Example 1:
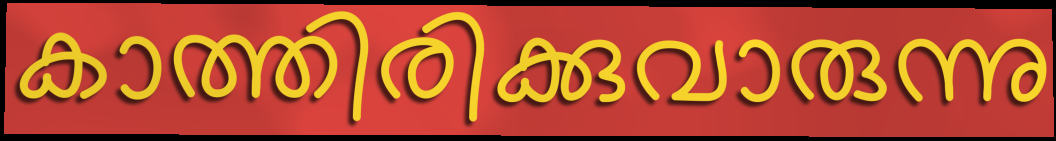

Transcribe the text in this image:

കാത്തിരിക്കുവാരുന്നു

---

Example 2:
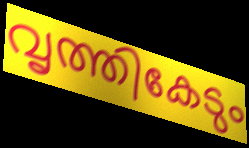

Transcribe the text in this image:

വൃത്തികേടും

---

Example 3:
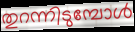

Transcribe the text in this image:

തുറന്നിടുമ്പോൾ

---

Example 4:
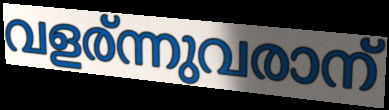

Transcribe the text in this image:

വളര്ന്നുവരാന്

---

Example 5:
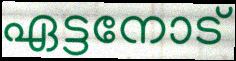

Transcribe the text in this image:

ഏട്ടനോട്